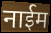
नाईम